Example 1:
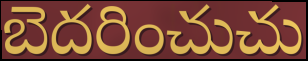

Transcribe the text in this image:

బెదరించుచు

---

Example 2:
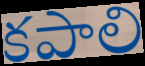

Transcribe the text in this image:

కపాలి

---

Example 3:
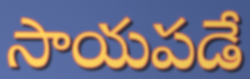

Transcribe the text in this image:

సాయపడే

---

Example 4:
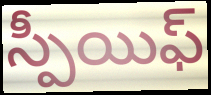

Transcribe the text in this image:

స్పీయిఫ్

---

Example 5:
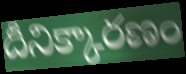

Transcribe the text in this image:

దీనిక్కారణం